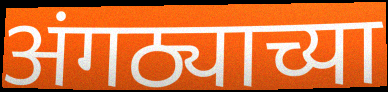
अंगठ्याच्या